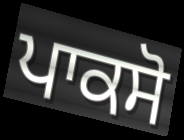
ਪਾਕਸੋ